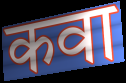
कवा